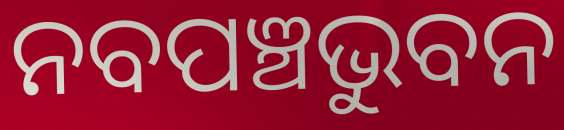
ନବପଞ୍ଚଭୁବନ